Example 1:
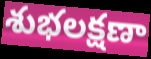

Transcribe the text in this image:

శుభలక్షణా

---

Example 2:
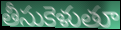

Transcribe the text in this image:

తీసుకెళుతూ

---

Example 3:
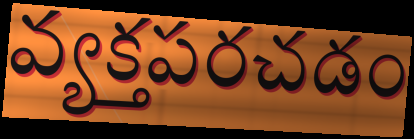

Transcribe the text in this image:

వ్యక్తపరచడం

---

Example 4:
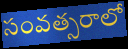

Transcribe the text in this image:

సంవత్సరాలో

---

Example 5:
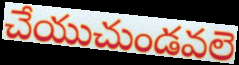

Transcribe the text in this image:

చేయుచుండవలె